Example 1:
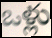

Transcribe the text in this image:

ఒళ్లు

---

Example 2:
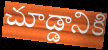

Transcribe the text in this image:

చూడ్డానికి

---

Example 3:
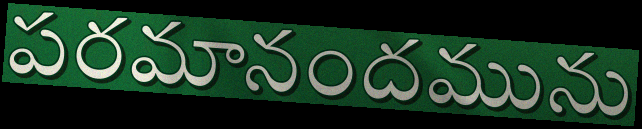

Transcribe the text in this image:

పరమానందమును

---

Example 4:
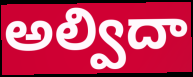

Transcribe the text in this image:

అల్విదా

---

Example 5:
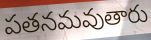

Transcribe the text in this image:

పతనమవుతారు